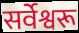
सर्वेश्वरू